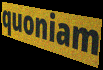
quoniam